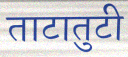
ताटातुटी